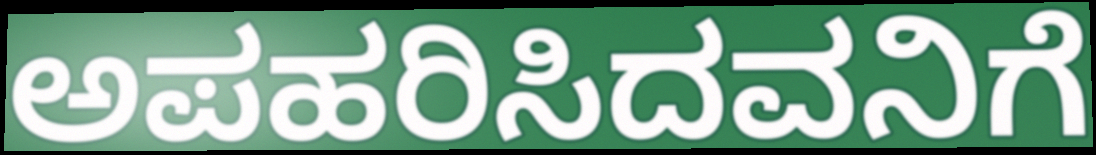
ಅಪಹರಿಸಿದವನಿಗೆ